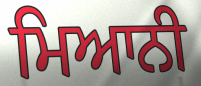
ਮਿਆਨੀ